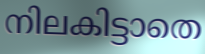
നിലകിട്ടാതെ